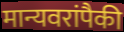
मान्यवरांपैकी